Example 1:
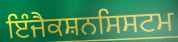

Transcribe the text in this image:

ਇੰਜੈਕਸ਼ਨਸਿਸਟਮ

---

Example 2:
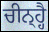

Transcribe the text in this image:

ਚੀਨ੍ਹ੍ਹੈ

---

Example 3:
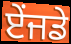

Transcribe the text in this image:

ਏਂਜਡੇ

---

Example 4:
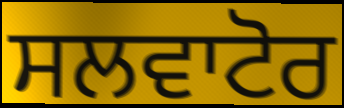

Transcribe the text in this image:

ਸਲਵਾਟੋਰ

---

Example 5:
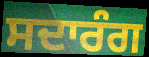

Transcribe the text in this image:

ਸਦਾਰੰਗ